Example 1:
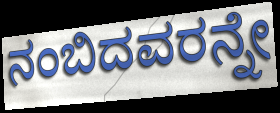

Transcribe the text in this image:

ನಂಬಿದವರನ್ನೇ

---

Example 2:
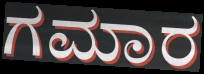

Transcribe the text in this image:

ಗಮಾರ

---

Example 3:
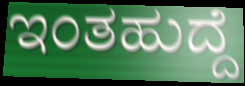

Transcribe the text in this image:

ಇಂತಹುದ್ದೆ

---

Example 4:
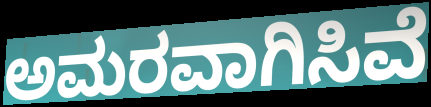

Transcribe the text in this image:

ಅಮರವಾಗಿಸಿವೆ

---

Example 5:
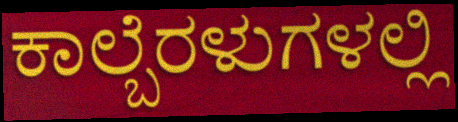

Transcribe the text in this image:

ಕಾಲ್ಬೆರಳುಗಳಲ್ಲಿ